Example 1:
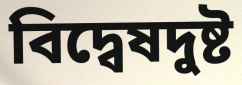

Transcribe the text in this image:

বিদ্বেষদুষ্ট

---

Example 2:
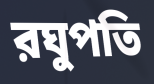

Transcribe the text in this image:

রঘুপতি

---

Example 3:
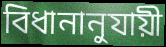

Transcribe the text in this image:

বিধানানুযায়ী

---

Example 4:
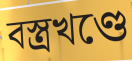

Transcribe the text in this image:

বস্ত্রখণ্ডে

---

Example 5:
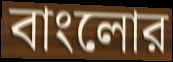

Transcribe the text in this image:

বাংলোর